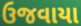
ઉજવાયા